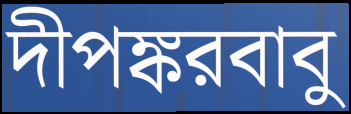
দীপঙ্করবাবু